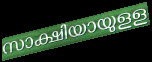
സാക്ഷിയായുളള